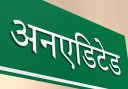
अनएडिटेड